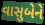
વાસુબેને